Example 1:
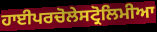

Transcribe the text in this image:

ਹਾਈਪਰਚੋਲੇਸਟ੍ਰੋਲਿਮੀਆ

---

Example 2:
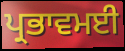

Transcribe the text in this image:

ਪ੍ਰਭਾਵਮਈ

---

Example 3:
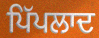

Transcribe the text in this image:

ਪਿੱਪਲਾਦ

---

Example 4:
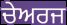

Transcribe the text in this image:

ਚੇਅਰਜ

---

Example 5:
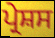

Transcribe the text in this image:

ਪ੍ਰੇਸ਼ਸ